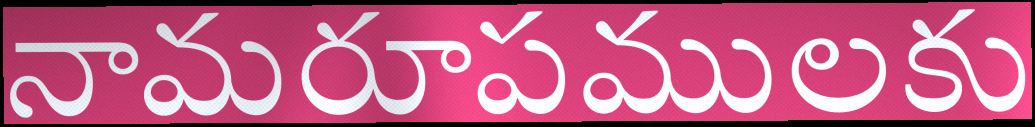
నామరూపములకు